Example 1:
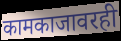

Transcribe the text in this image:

कामकाजावरही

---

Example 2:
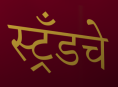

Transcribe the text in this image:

स्ट्रँडचे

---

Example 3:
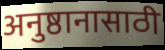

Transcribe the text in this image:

अनुष्ठानासाठी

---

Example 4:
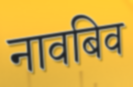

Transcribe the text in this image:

नावबिव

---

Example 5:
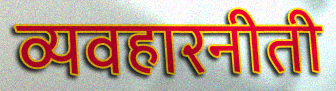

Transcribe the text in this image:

व्यवहारनीती